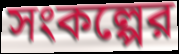
সংকল্পের